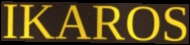
IKAROS